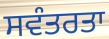
ਸਵੰਤਰਤਾ